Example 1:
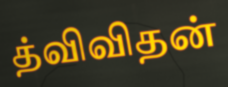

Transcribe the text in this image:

த்விவிதன்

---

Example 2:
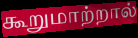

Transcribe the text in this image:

கூறுமாற்றால்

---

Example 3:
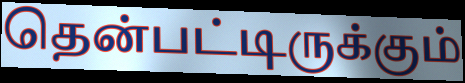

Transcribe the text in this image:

தென்பட்டிருக்கும்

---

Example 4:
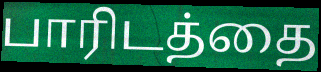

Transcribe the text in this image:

பாரிடத்தை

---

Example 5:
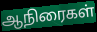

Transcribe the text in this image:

ஆநிரைகள்